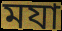
মযা